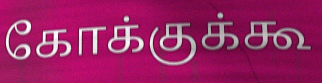
கோக்குக்கூ